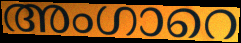
അംഗാറെ